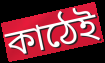
কাঠেই